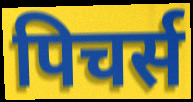
पिचर्स